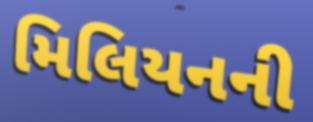
મિલિયનની